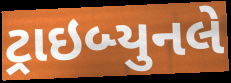
ટ્રાઇબ્યુનલે